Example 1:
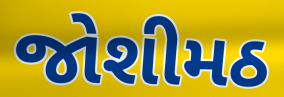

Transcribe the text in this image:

જોશીમઠ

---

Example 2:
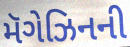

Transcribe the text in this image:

મૅગેઝિનની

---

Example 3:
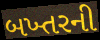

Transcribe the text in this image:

બખ્તરની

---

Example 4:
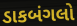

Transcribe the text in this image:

ડાકબંગલો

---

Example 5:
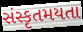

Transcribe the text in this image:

સંસ્કૃતમયતા